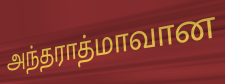
அந்தராத்மாவான